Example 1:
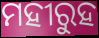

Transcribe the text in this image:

ମହୀରୁହ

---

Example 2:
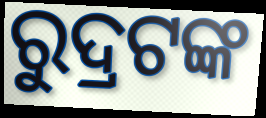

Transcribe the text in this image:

ରୁଦ୍ରଟଙ୍କ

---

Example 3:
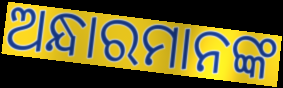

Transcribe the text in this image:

ଅନ୍ଧାରମାନଙ୍କ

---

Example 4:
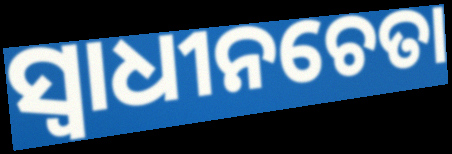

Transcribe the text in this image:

ସ୍ବାଧୀନଚେତା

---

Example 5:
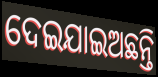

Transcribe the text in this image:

ଦେଇଯାଇଅଛନ୍ତି